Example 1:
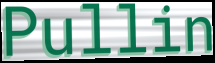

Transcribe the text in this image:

Pullin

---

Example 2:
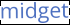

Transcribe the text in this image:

midget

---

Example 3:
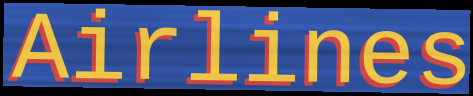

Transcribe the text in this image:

Airlines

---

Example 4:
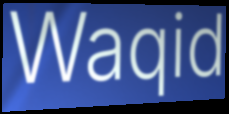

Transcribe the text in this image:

Waqid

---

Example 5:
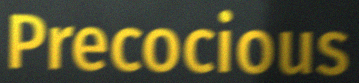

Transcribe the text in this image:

Precocious